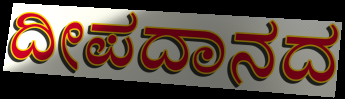
ದೀಪದಾನದ